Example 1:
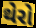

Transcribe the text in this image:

થેરો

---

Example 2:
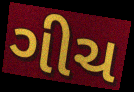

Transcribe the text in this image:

ગીચ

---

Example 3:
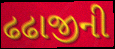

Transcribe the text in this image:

ઢઢાજીની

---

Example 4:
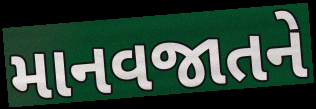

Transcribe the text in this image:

માનવજાતને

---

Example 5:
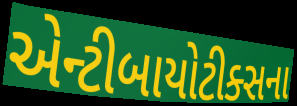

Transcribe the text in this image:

એન્ટીબાયોટીક્સના